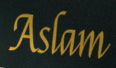
Aslam